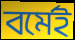
বর্মেই